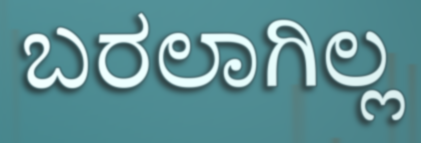
ಬರಲಾಗಿಲ್ಲ